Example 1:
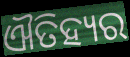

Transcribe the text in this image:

ଐତିହ୍ୟର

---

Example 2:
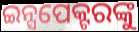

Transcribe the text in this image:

ଇନ୍ସପେକ୍ଟରଙ୍କୁ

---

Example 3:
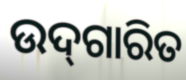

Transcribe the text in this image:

ଉଦ୍‌ଗାରିତ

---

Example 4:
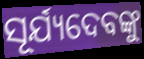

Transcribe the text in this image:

ସୂର୍ଯ୍ୟଦେବଙ୍କୁ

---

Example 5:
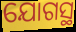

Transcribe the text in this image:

ଯୋଗସ୍ଥ